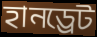
হানড্রেট